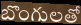
బొంగులతో